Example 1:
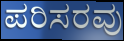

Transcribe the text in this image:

ಪರಿಸರವು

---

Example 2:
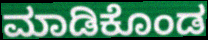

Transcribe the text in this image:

ಮಾಡಿಕೊಂಡ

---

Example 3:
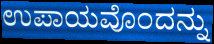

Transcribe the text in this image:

ಉಪಾಯವೊಂದನ್ನು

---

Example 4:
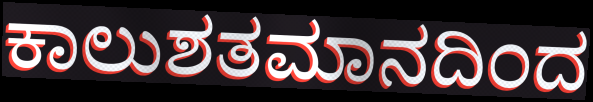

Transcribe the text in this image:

ಕಾಲುಶತಮಾನದಿಂದ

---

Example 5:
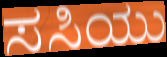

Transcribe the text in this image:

ಸಸಿಯು